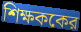
শিক্ষককের